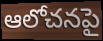
ఆలోచనపై